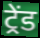
ट्रेंड